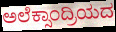
ಅಲೆಕ್ಸಾಂದ್ರಿಯದ